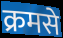
क्रमसे